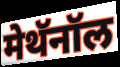
मेथॅनॉल